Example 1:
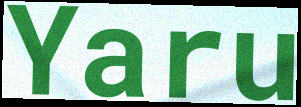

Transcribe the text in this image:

Yaru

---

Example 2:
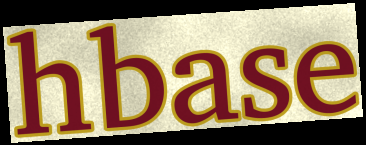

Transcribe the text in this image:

hbase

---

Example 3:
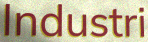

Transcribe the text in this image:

Industri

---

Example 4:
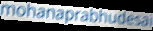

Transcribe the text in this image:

mohanaprabhudesai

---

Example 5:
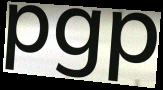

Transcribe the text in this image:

pgp